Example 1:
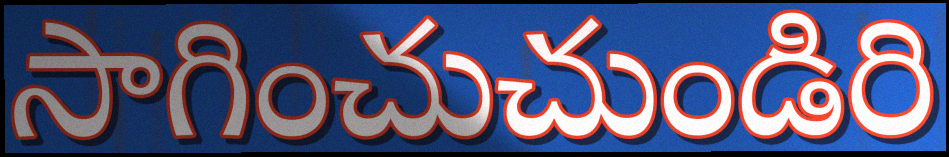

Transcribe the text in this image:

సాగించుచుండిరి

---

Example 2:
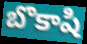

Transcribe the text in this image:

బొకాషి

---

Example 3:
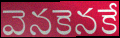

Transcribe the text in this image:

వెనకెనకే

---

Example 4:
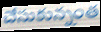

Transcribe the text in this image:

చేసుకున్నంత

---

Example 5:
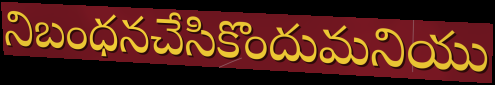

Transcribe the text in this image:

నిబంధనచేసికొందుమనియు